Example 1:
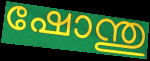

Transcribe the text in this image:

ഷോന്തു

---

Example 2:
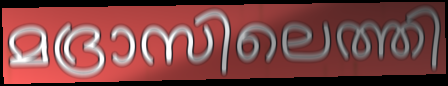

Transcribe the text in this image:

മദ്രാസിലെത്തി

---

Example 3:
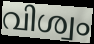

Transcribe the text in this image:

വിശ്വം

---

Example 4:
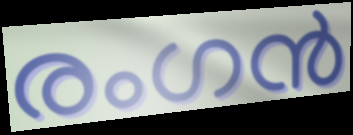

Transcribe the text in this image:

രംഗൻ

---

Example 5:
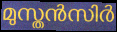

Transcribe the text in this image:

മുസ്തൻസിർ